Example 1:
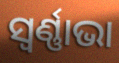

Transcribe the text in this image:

ସ୍ୱର୍ଣ୍ଣାଭା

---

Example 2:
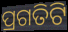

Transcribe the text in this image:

ପ୍ରଗତିଟି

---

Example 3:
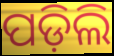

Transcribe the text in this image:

ପଡ଼ିଲି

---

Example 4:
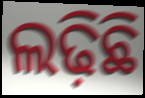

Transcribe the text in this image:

ଲଢ଼ିଛି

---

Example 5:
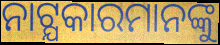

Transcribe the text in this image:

ନାଟ୍ଯକାରମାନଙ୍କୁ